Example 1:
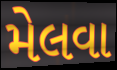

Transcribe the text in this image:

મેલવા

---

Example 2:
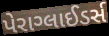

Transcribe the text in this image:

પેરાગ્લાઈડર્સ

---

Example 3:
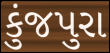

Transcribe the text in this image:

કુંજપુરા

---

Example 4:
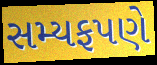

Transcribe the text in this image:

સમ્યફપણે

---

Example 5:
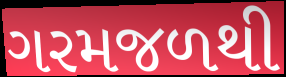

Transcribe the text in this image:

ગરમજળથી